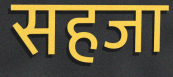
सहजा